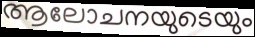
ആലോചനയുടെയും